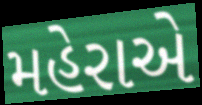
મહેરાએ